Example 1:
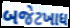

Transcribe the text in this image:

બજેટખાધ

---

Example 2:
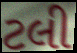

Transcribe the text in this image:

ટલી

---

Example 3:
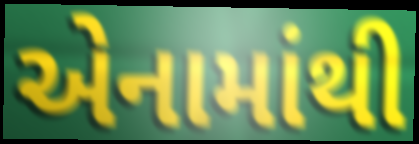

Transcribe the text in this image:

એનામાંથી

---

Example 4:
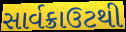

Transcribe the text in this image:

સાર્વક્રાઉટથી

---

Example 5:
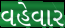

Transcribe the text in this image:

વહેવાર